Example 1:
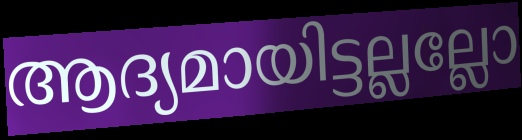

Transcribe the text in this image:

ആദ്യമായിട്ടല്ലല്ലോ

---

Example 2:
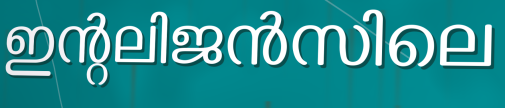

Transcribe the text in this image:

ഇന്റലിജൻസിലെ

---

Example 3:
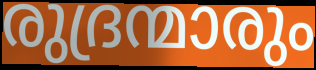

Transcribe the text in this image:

രുദ്രന്മാരും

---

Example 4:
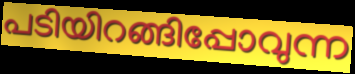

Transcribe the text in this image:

പടിയിറങ്ങിപ്പോവുന്ന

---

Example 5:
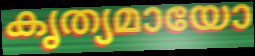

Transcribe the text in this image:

കൃത്യമായോ